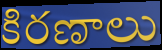
కిరణాలు